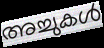
അച്ചുകൾ